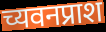
च्यवनप्राश